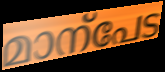
മാന്പേട